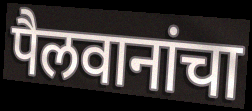
पैलवानांचा